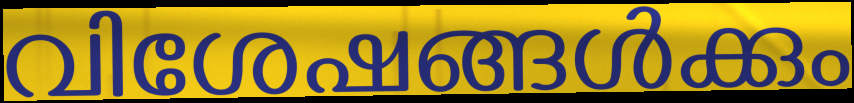
വിശേഷങ്ങൾക്കും